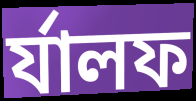
র্যালফ